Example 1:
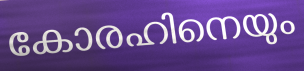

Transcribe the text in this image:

കോരഹിനെയും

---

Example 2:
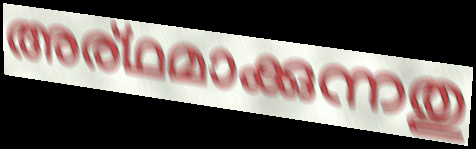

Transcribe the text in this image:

അര്ഥമാക്കുന്നതു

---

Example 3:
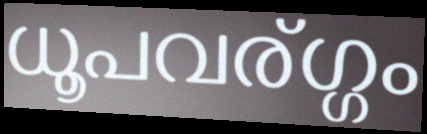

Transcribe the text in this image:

ധൂപവര്ഗ്ഗം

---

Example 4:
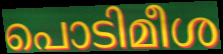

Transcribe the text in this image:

പൊടിമീശ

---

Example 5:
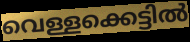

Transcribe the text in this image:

വെള്ളക്കെട്ടിൽ